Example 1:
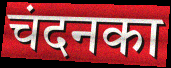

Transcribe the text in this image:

चंदनका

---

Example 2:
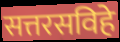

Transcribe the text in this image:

सत्तरसविहे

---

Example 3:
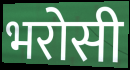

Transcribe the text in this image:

भरोसी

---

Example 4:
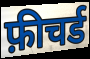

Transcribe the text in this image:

फ़ीचर्ड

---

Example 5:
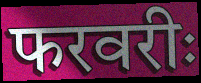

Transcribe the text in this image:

फरवरीः